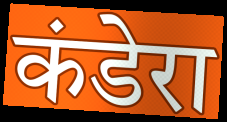
कंडेरा